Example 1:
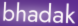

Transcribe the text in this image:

bhadak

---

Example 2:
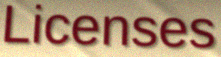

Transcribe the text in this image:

Licenses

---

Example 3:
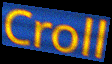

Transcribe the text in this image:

Croll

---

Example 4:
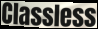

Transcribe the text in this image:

Classless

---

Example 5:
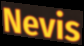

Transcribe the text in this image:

Nevis